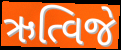
ઋત્વિજે